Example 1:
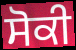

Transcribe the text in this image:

ਸੋਕੀ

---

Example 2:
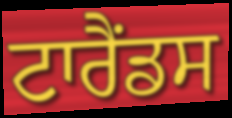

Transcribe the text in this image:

ਟਾਰੈਂਡਸ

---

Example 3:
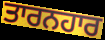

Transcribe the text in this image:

ਤਾਰਨਹਾਰ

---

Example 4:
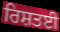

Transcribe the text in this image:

ਰਿਸ਼ਤਈ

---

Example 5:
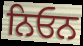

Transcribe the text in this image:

ਨਿਓਨ